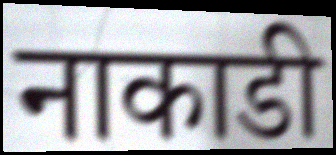
नाकाडी